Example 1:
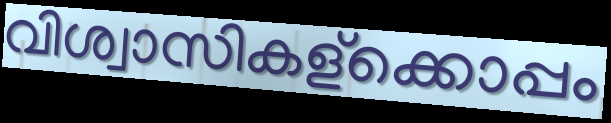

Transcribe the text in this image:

വിശ്വാസികള്ക്കൊപ്പം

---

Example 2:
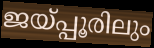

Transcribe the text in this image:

ജയ്പ്പൂരിലും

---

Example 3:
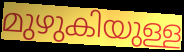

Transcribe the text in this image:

മുഴുകിയുള്ള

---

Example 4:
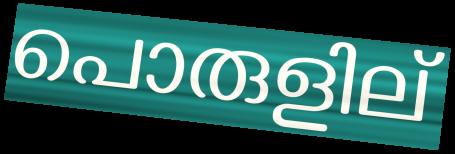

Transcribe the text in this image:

പൊരുളില്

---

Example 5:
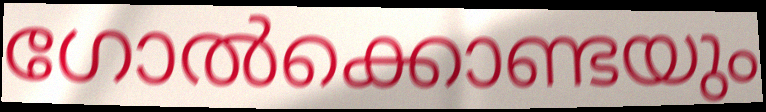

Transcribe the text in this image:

ഗോൽക്കൊണ്ടയും